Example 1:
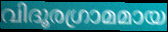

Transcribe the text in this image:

വിദൂരഗ്രാമമായ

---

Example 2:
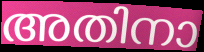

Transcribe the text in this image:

അതിനാ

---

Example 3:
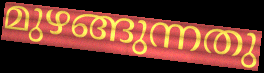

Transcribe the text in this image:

മുഴങ്ങുന്നതു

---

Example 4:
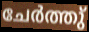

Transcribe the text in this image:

ചേർത്തു്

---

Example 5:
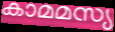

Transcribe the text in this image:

കാമമസ്യ